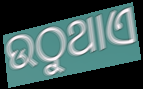
ଉଠୁଥାଏ